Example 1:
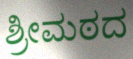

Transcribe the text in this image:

ಶ್ರೀಮಠದ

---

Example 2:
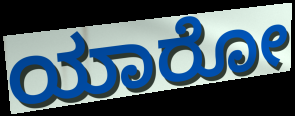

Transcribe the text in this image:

ಯಾರೋ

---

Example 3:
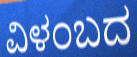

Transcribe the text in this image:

ವಿಳಂಬದ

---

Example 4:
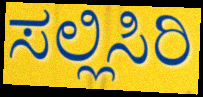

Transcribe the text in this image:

ಸಲ್ಲಿಸಿರಿ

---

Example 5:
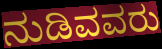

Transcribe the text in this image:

ನುಡಿವವರು